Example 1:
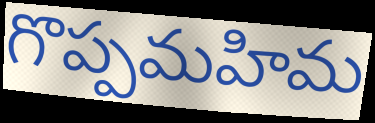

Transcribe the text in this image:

గొప్పమహిమ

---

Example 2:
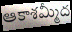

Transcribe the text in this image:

ఆకాశమ్మీద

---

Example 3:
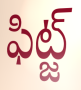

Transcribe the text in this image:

ఫిట్జ్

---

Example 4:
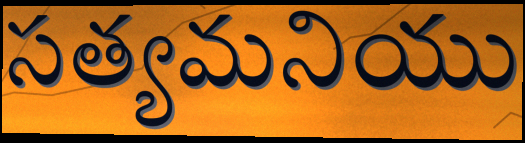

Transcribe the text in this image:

సత్యమనియు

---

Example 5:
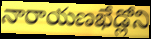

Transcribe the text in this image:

నారాయణఖేడ్లోని